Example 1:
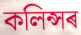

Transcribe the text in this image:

কলিন্সৰ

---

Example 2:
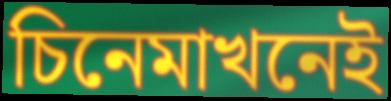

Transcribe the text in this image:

চিনেমাখনেই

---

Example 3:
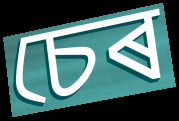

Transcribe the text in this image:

চেৰ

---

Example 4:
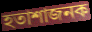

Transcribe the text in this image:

হতাশাজনক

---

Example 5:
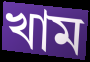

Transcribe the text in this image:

খাম